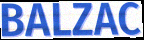
BALZAC